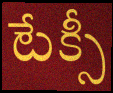
టేక్సీ